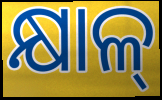
କ୍ଷାଳ୍